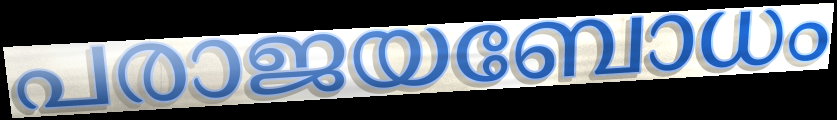
പരാജയബോധം